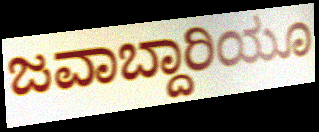
ಜವಾಬ್ದಾರಿಯೂ